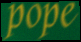
pope